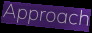
Approach